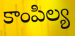
కాంపిల్య